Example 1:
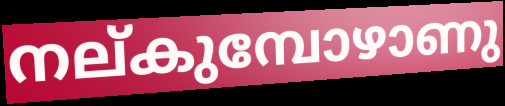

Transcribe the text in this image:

നല്കുമ്പോഴാണു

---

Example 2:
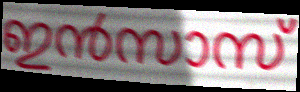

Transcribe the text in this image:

ഇൻസാസ്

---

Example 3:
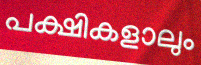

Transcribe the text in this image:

പക്ഷികളാലും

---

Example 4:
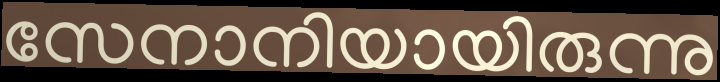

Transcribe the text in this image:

സേനാനിയായിരുന്നു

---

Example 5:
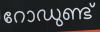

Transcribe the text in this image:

റോഡുണ്ട്